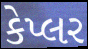
કેપ્લર